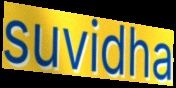
suvidha